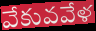
వేకువవేళ